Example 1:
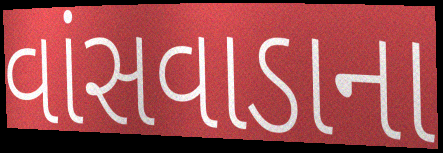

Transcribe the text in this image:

વાંસવાડાના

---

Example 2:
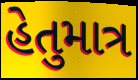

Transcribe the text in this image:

હેતુમાત્ર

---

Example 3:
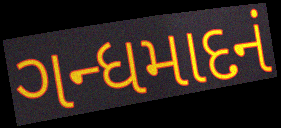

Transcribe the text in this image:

ગન્ધમાદનં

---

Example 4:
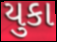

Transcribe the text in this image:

યુકા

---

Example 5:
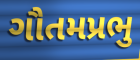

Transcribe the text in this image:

ગૌતમપ્રભુ